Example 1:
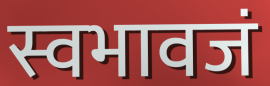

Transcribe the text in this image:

स्वभावजं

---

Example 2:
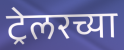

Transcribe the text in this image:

ट्रेलरच्या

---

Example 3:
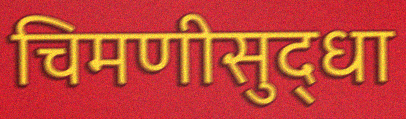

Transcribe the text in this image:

चिमणीसुद्धा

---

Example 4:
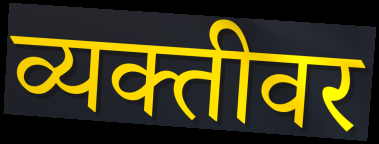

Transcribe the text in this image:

व्यक्तीवर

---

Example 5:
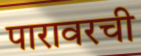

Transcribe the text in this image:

पारावरची